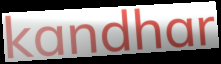
kandhar